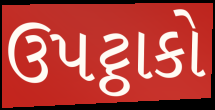
ઉપટ્ઠાકો